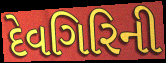
દેવગિરિની